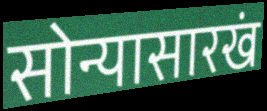
सोन्यासारखं